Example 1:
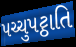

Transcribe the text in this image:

પચ્ચુપટ્ઠાતિ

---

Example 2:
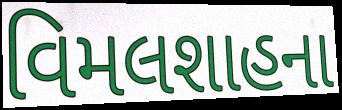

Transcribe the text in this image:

વિમલશાહના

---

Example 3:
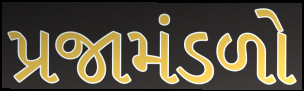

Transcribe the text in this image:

પ્રજામંડળો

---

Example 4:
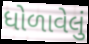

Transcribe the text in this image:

ધોળાવેલું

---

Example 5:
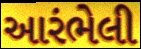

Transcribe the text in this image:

આરંભેલી